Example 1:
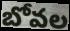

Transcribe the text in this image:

బోవల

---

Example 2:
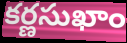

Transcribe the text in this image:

కర్ణసుఖాం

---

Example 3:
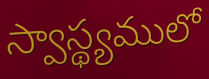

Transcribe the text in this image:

స్వాస్థ్యములో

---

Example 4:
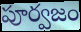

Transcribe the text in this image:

పూర్వజం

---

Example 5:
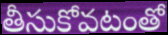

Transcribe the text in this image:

తీసుకోవటంతో